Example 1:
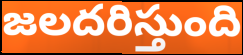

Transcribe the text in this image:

జలదరిస్తుంది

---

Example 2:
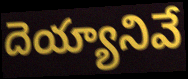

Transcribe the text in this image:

దెయ్యానివే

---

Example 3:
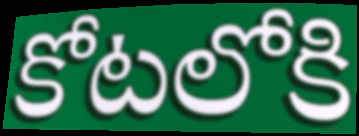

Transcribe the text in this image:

కోటలోకి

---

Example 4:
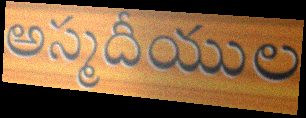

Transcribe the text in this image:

అస్మదీయుల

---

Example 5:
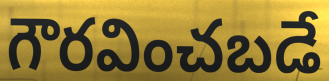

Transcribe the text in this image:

గౌరవించబడే